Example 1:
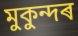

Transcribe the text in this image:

মুকুন্দৰ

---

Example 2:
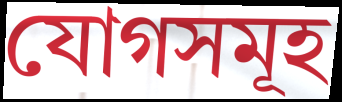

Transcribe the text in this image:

যোগসমূহ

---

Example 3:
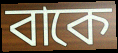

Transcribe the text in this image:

বাকে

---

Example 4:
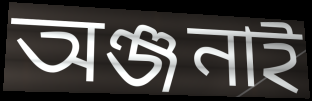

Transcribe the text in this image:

অঞ্জনাই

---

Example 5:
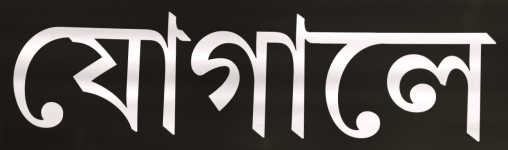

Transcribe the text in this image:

যোগালে